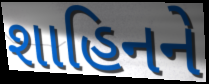
શાહિનને